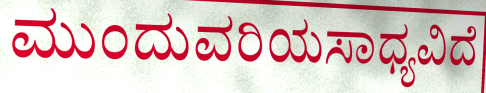
ಮುಂದುವರಿಯಸಾಧ್ಯವಿದೆ